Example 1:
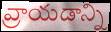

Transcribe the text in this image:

వ్రాయడాన్ని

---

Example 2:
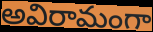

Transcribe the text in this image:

అవిరామంగా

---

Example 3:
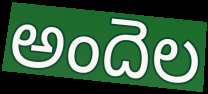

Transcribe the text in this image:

అందెల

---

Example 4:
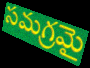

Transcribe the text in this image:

సమగ్రమై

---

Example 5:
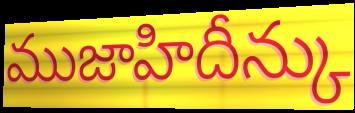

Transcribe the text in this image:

ముజాహిదీన్కు